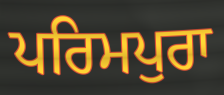
ਪਰਿਮਪੁਰਾ